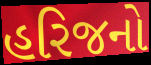
હરિજનો